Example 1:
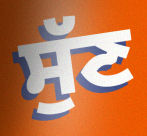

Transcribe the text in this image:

ਸੁੱਣ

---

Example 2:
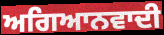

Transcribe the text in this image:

ਅਗਿਆਨਵਾਦੀ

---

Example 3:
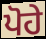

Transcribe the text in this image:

ਪੋਹੇ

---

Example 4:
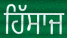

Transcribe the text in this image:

ਹਿੱਸਾਜ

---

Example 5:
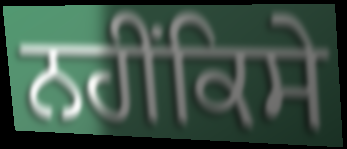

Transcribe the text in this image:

ਨਹੀਂਕਿਸੇ